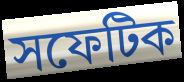
সফেটিক